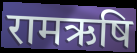
रामऋषि